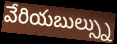
వేరియబుల్స్ను